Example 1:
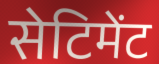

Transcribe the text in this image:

सेटिमेंट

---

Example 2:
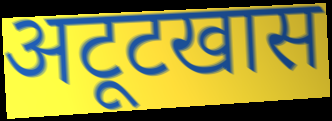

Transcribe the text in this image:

अटूटखास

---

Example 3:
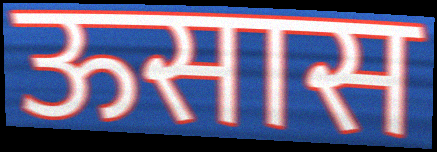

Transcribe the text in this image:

ऊसास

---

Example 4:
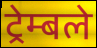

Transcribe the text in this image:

ट्रेम्बले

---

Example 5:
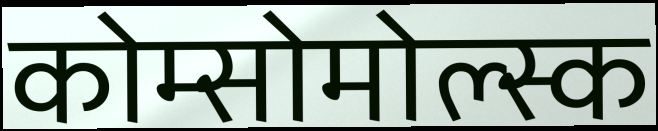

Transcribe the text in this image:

कोम्सोमोल्स्क